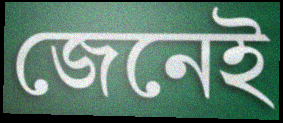
জেনেই